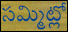
సమ్మిట్లో